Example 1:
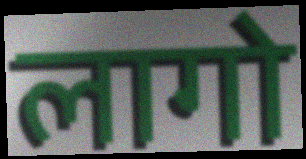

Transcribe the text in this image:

लागो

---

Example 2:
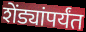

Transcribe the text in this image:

शेंड्यांपर्यंत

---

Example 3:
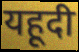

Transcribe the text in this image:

यहूदी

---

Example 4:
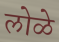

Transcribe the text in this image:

लोळे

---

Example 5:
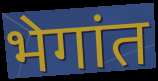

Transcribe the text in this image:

भेगांत